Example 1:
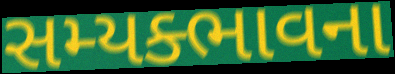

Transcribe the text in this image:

સમ્યક્ભાવના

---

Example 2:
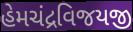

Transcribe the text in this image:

હેમચંદ્રવિજયજી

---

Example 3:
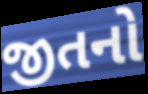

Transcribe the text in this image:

જીતનો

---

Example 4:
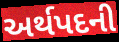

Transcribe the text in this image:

અર્થપદની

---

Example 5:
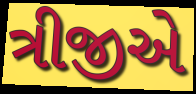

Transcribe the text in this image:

ત્રીજીએ